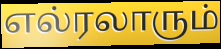
எல்ரலாரும்